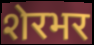
शेरभर